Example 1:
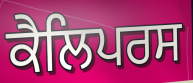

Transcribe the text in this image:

ਕੈਲਿਪਰਸ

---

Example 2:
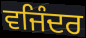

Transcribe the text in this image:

ਵਜਿੰਦਰ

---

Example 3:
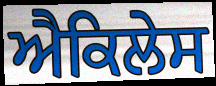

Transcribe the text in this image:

ਐਕਿਲੇਸ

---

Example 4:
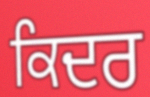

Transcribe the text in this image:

ਕਿਦਰ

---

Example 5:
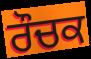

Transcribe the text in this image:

ਰੌਚਕ